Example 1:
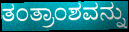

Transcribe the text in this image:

ತಂತ್ರಾಂಶವನ್ನು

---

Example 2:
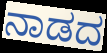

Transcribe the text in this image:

ನಾಡದ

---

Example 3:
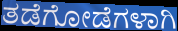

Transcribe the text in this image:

ತಡೆಗೋಡೆಗಳಾಗಿ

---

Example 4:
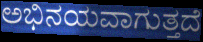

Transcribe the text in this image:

ಅಭಿನಯವಾಗುತ್ತದೆ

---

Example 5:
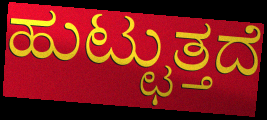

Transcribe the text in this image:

ಹುಟ್ಟುತ್ತದೆ